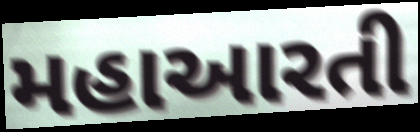
મહાઆરતી